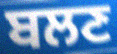
ਬਲਣ